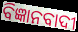
ବିଜ୍ଞାନବାଦୀ